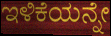
ಇಳಿಕೆಯನ್ನೇ